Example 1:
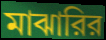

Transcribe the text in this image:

মাঝারির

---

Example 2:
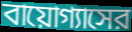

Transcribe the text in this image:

বায়োগ্যাসের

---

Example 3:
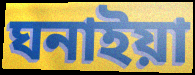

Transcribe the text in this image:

ঘনাইয়া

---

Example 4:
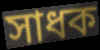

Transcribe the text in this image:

সাধক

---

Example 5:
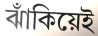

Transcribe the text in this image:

ঝাঁকিয়েই